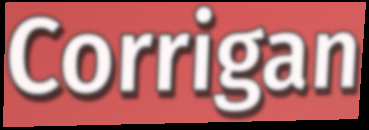
Corrigan